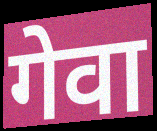
गेवा